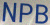
NPB